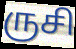
ருசி